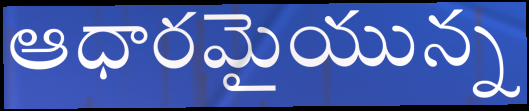
ఆధారమైయున్న